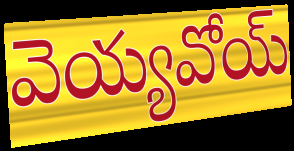
వెయ్యవోయ్